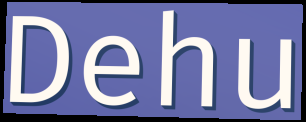
Dehu